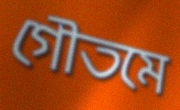
গৌতমে